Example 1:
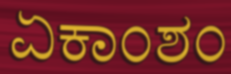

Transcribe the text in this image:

ಏಕಾಂಶಂ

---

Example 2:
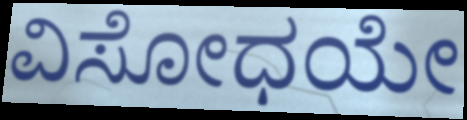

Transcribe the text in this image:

ವಿಸೋಧಯೇ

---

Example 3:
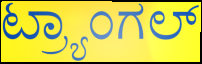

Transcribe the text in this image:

ಟ್ರ್ಯಾಂಗಲ್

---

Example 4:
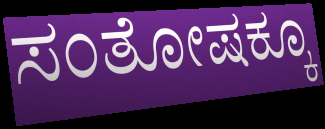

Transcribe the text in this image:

ಸಂತೋಷಕ್ಕೂ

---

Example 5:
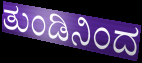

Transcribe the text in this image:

ತುಂಡಿನಿಂದ